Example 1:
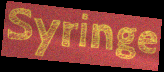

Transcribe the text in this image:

Syringe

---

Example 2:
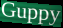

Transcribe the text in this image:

Guppy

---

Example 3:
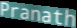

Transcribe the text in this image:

Pranath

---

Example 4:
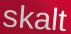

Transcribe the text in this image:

skalt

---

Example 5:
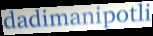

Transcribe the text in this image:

dadimanipotli